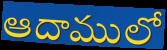
ఆదాములో